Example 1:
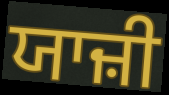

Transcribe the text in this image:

ਯਾਜ਼ੀ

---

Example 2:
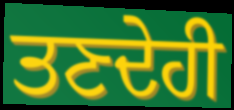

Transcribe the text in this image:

ਤਣਦੇਹੀ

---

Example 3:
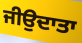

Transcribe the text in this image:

ਜੀਉਦਾਤਾ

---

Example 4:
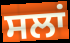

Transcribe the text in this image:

ਸਲਾਂ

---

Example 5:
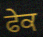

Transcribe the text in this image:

ਫੇਕ